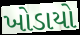
ખોડાયો